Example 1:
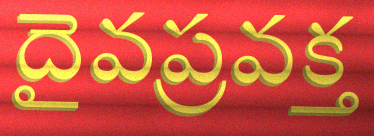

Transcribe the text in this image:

దైవప్రవక్త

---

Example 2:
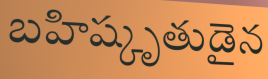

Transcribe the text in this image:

బహిష్కృతుడైన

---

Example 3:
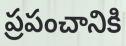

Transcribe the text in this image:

ప్రపంచానికి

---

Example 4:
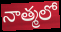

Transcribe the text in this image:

నాత్మలో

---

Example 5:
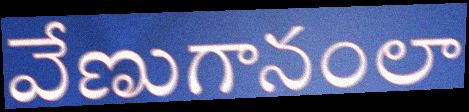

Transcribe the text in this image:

వేణుగానంలా